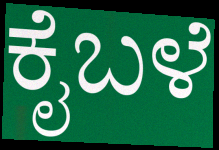
ಕೈಬಳೆ